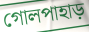
গোলপাহাড়